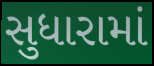
સુધારામાં